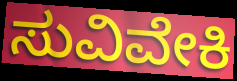
ಸುವಿವೇಕಿ